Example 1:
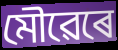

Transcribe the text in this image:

মৌৱেৰে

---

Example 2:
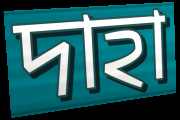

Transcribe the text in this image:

দাহা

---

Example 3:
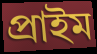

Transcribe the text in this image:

প্ৰাইম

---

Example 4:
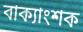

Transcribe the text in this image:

বাক্যাংশক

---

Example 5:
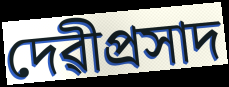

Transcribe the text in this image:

দেৱীপ্ৰসাদ